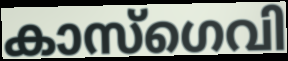
കാസ്ഗെവി